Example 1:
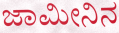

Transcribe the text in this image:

ಜಾಮೀನಿನ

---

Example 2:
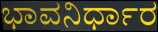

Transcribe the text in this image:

ಭಾವನಿರ್ಧಾರ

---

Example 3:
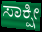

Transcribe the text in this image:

ಸಾಕ್ಷೀ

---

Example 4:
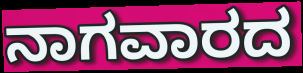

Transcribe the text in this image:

ನಾಗವಾರದ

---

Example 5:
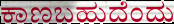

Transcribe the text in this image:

ಕಾಣಬಹುದೆಂದು